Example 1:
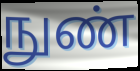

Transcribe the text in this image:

நுண்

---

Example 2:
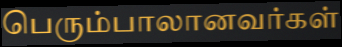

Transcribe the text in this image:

பெரும்பாலானவர்கள்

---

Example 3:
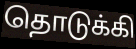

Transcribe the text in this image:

தொடுக்கி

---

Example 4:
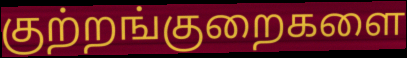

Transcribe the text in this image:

குற்றங்குறைகளை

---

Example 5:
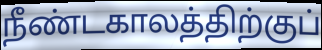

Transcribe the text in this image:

நீண்டகாலத்திற்குப்